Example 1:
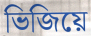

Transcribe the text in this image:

ভিজিয়ে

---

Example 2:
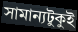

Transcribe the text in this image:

সামান্যটুকুই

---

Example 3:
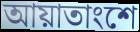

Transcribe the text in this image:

আয়াতাংশে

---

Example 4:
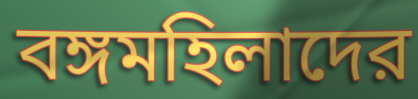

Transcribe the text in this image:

বঙ্গমহিলাদের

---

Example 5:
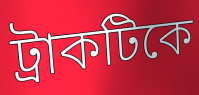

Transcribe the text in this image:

ট্রাকটিকে